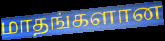
மாதங்களான